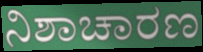
ನಿಶಾಚಾರಣ